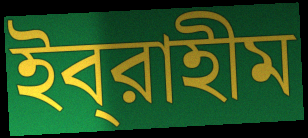
ইব্‌রাহীম